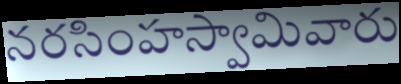
నరసింహస్వామివారు